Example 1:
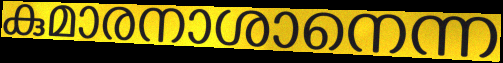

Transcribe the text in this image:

കുമാരനാശാനെന്ന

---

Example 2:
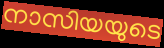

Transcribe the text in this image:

നാസിയയുടെ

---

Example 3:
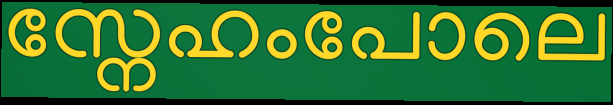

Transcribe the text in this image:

സ്നേഹംപോലെ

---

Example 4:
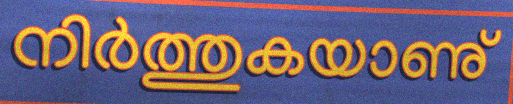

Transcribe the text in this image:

നിർത്തുകയാണു്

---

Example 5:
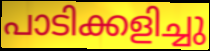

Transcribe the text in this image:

പാടിക്കളിച്ചു